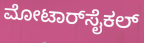
ಮೋಟಾರ್‌ಸೈಕಲ್